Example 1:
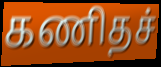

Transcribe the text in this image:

கணிதச்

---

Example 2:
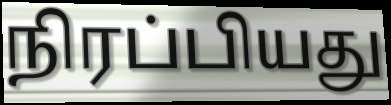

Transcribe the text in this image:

நிரப்பியது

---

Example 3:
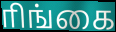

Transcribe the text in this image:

ரிங்கை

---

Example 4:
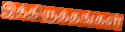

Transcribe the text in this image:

இத்திருத்தங்கள்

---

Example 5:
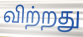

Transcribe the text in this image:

விற்றது